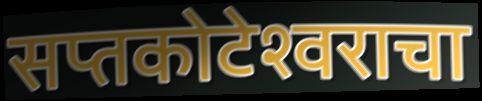
सप्तकोटेश्वराचा